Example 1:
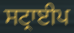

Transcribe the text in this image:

ਸਟ੍ਰਾਈਪ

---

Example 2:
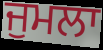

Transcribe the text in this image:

ਜੁਮਲਾ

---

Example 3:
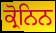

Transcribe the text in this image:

ਕ੍ਰੋਨਿਨ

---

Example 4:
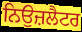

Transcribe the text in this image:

ਨਿਉਜ਼ਲੈਟਰ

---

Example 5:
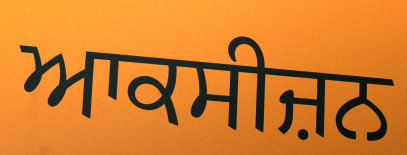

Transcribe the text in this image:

ਆਕਸੀਜ਼ਨ